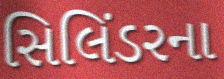
સિલિંડરના